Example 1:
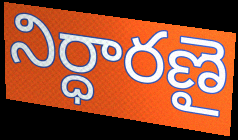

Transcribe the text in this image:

నిర్ధారణై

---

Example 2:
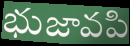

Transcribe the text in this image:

భుజావపి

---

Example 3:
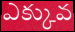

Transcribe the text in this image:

ఎక్కువ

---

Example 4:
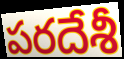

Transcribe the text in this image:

పరదేశీ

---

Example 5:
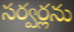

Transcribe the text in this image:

సర్వర్లను